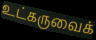
உட்கருவைக்